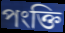
পংক্তি